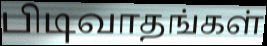
பிடிவாதங்கள்